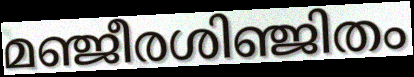
മഞ്ജീരശിഞ്ജിതം